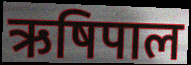
ऋषिपाल